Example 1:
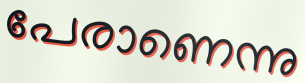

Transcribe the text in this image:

പേരാണെന്നു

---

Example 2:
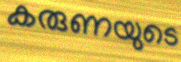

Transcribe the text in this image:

കരുണയുടെ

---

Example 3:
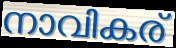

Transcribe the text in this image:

നാവികര്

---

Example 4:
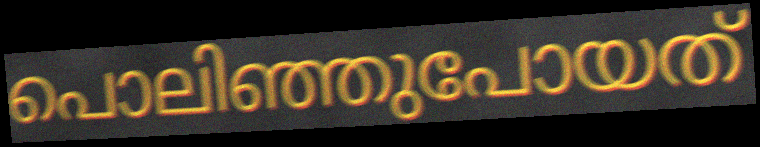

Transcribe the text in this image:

പൊലിഞ്ഞുപോയത്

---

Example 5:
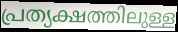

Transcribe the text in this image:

പ്രത്യക്ഷത്തിലുള്ള